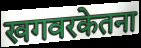
खगवरकेतना